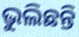
ଭୁଲିଛନ୍ତି